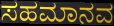
ಸಹಮಾನವ